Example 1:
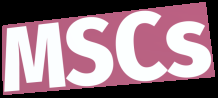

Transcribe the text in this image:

MSCs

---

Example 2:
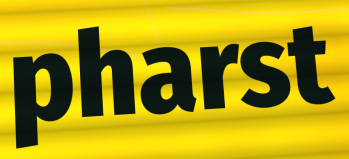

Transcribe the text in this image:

pharst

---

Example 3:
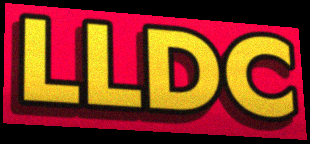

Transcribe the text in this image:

LLDC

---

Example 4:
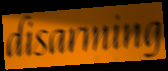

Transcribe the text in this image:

disarming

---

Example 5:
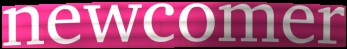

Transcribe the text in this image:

newcomer